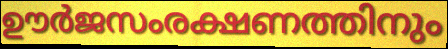
ഊർജസംരക്ഷണത്തിനും